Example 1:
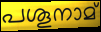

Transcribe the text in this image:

പശൂനാമ്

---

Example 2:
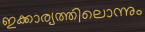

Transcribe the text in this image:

ഇക്കാര്യത്തിലൊന്നും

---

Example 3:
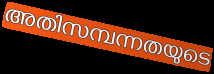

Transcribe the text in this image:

അതിസമ്പന്നതയുടെ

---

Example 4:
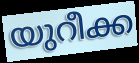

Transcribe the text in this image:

യുറീക്ക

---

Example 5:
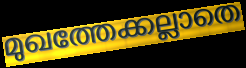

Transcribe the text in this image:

മുഖത്തേക്കല്ലാതെ